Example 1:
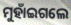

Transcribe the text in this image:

ମୁହାଁଇଗଲେ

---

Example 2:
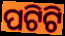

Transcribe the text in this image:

ପଟିଟି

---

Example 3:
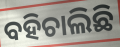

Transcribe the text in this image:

ବହିଚାଲିଛି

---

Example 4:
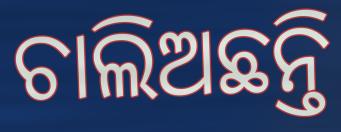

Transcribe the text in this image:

ଚାଲିଅଛନ୍ତି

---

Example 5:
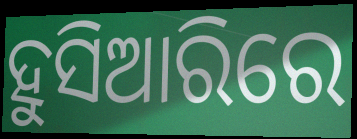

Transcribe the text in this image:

ହୁସିଆରିରେ